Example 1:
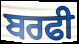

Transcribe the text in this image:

ਬਰਫੀ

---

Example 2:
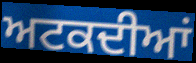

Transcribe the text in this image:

ਅਟਕਦੀਆਂ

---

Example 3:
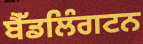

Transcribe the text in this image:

ਬੈੱਡਲਿੰਗਟਨ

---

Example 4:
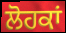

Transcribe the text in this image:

ਲੋਹਕਾਂ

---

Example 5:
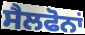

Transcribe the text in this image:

ਸੈਲਫੋਨਾਂ